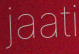
jaati